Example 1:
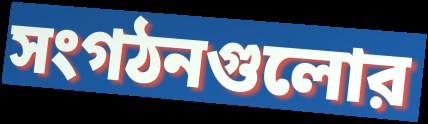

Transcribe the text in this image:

সংগঠনগুলোর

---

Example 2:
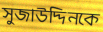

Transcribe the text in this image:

সুজাউদ্দিনকে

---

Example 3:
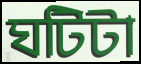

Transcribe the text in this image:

ঘটিটা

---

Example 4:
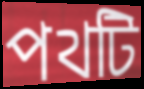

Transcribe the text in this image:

পথটি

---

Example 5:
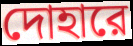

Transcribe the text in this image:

দোহারে